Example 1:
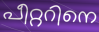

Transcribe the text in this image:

പീറ്ററിനെ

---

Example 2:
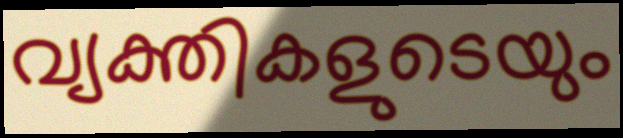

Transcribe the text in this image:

വ്യക്തികളുടെയും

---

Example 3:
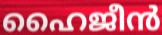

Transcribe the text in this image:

ഹൈജീൻ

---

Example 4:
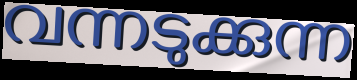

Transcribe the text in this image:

വന്നടുക്കുന്ന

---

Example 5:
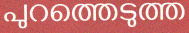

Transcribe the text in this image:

പുറത്തെടുത്ത